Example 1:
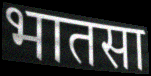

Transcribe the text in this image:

भातसा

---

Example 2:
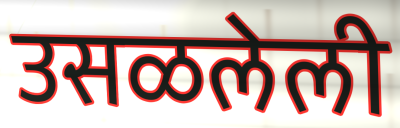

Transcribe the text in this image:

उसळलेली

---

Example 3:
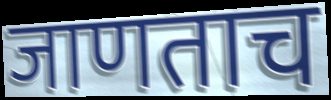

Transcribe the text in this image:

जाणताच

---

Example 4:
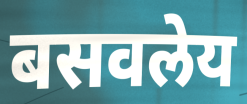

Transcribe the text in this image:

बसवलेय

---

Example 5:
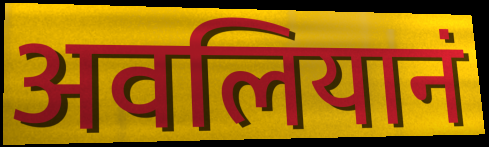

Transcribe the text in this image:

अवलियानं